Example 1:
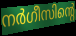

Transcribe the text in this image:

നർഗീസിന്റെ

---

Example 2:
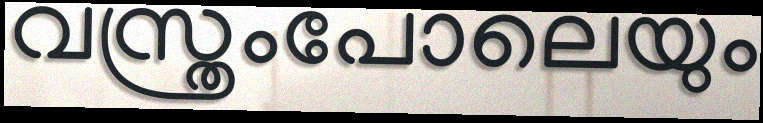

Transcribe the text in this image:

വസ്ത്രംപോലെയും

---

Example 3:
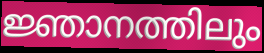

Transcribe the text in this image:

ജ്ഞാനത്തിലും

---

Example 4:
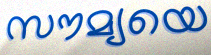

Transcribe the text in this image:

സൗമ്യയെ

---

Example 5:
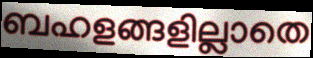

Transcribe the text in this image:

ബഹളങ്ങളില്ലാതെ